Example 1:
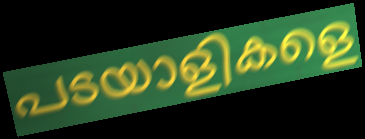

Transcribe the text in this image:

പടയാളികളെ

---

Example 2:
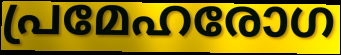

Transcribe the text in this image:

പ്രമേഹരോഗ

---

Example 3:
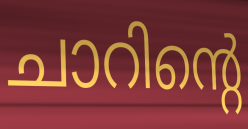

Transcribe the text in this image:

ചാറിന്റെ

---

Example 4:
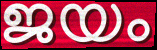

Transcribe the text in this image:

ജയം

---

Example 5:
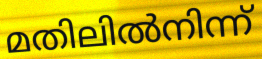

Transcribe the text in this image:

മതിലിൽനിന്ന്